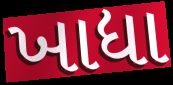
ખાદ્યા